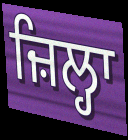
ਜ਼ਿਲ੍ਹ੍ਹਾ